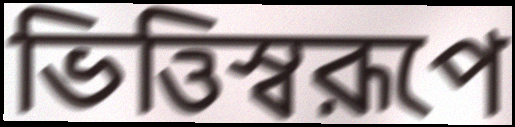
ভিত্তিস্বরূপে